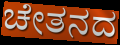
ಚೇತನದ